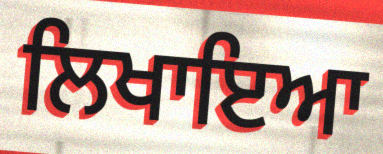
ਲਿਖਾਇਆ